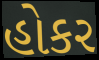
હોકર